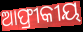
ଆଫ୍ରୀକୀୟ